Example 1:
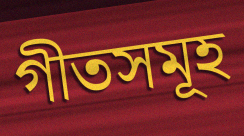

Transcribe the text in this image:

গীতসমূহ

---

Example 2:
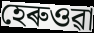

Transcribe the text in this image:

হেৰুওৱা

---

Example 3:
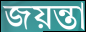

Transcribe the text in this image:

জয়ন্তা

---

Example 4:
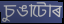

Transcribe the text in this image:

চুঙাটোৰ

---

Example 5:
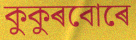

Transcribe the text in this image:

কুকুৰবোৰে